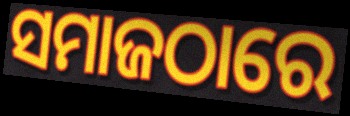
ସମାଜଠାରେ